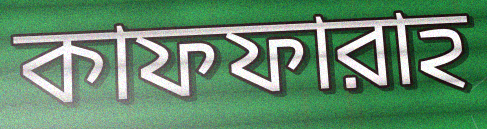
কাফফারাহ